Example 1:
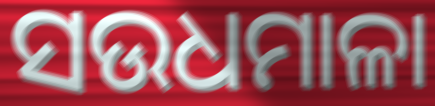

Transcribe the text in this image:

ସଉଧମାଳା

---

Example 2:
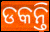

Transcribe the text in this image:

ଡକନ୍ତି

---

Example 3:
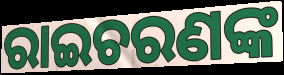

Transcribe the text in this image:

ରାଇଚରଣଙ୍କ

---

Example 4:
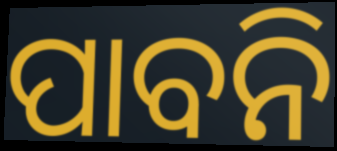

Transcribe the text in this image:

ପାବନି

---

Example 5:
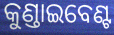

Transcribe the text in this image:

କୁଣ୍ଡାଇବେଣ୍ଟ